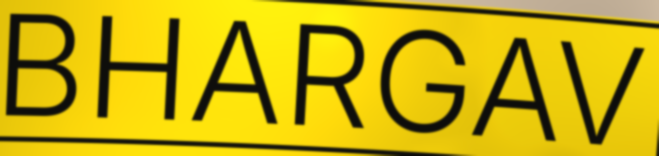
BHARGAV